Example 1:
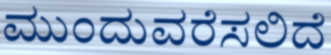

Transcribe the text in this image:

ಮುಂದುವರೆಸಲಿದೆ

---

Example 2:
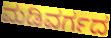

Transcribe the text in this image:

ಮಡಿವರ್ಗದ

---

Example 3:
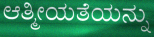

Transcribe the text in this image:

ಆತ್ಮೀಯತೆಯನ್ನು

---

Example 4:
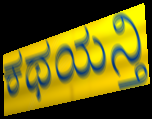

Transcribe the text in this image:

ಕಥಯನ್ತಿ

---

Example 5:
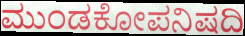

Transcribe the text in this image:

ಮುಂಡಕೋಪನಿಷದಿ